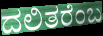
ದಲಿತರೆಂಬ